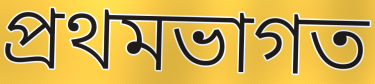
প্ৰথমভাগত